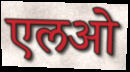
एलओ